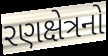
રણક્ષેત્રનો